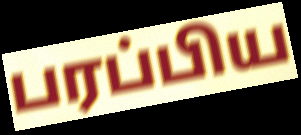
பரப்பிய